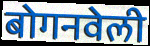
बोगनवेली